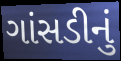
ગાંસડીનું